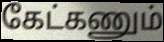
கேட்கணும்